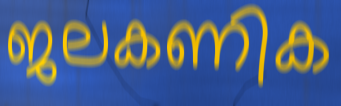
ജലകണിക